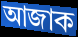
আজাক